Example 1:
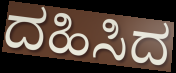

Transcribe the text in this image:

ದಹಿಸಿದ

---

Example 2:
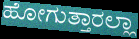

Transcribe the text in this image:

ಹೋಗುತ್ತಾರಲ್ಲಾ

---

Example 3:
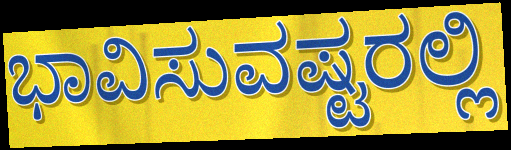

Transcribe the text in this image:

ಭಾವಿಸುವಷ್ಟರಲ್ಲಿ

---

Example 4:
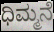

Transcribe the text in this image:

ಧಿಮ್ಮನೆ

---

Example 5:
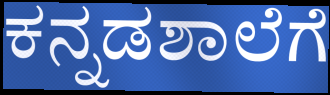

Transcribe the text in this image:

ಕನ್ನಡಶಾಲೆಗೆ